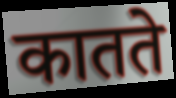
कातते